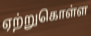
ஏற்றுகொள்ள